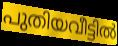
പുതിയവീട്ടിൽ